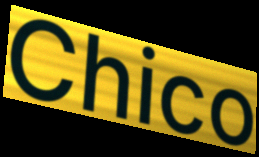
Chico